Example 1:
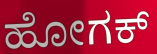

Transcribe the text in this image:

ಹೋಗಕ್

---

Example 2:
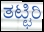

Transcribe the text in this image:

ತಟ್ಟಿರಿ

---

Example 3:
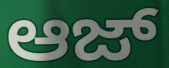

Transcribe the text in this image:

ಆಜ್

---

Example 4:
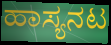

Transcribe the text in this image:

ಹಾಸ್ಯನಟ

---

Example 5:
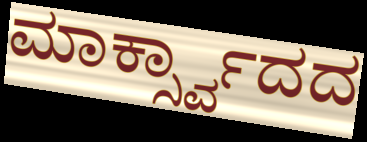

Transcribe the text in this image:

ಮಾರ್ಕ್ಸ್ವಾದದ